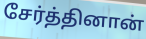
சேர்த்தினான்